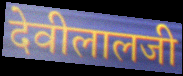
देवीलालजी